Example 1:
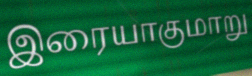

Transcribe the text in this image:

இரையாகுமாறு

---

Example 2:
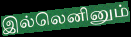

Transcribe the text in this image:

இல்லெனினும்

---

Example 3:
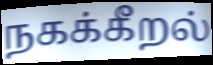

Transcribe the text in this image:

நகக்கீறல்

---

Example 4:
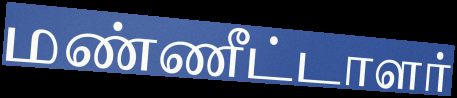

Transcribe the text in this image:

மண்ணீட்டாளர்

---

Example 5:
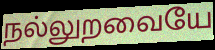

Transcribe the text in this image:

நல்லுறவையே